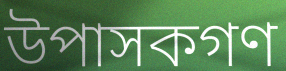
উপাসকগণ